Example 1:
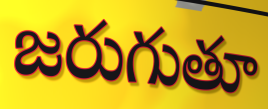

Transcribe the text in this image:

జరుగుతూ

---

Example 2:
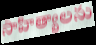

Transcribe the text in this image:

సాహిత్యాలను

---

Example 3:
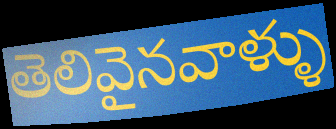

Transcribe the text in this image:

తెలివైనవాళ్ళు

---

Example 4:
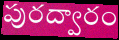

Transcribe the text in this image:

పురద్వారం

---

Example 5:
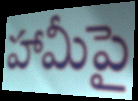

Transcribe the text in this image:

హామీపై